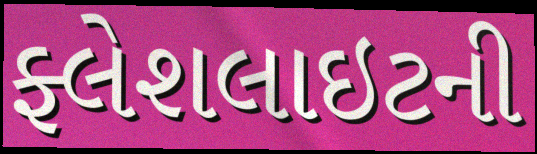
ફ્લેશલાઇટની